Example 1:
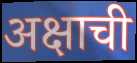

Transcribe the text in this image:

अक्षाची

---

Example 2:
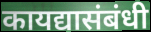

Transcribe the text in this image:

कायद्यासंबंधी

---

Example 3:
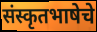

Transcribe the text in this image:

संस्कृतभाषेचे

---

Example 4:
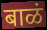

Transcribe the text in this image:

बाळं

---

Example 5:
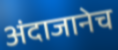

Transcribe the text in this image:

अंदाजानेच